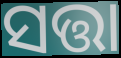
ସତ୍ତା